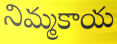
నిమ్మకాయ